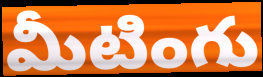
మీటింగు